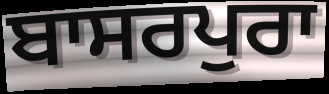
ਬਾਸਰਪੁਰਾ